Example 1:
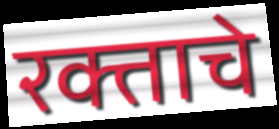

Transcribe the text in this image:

रक्ताचे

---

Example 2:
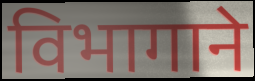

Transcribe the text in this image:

विभागाने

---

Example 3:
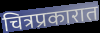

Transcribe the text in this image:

चित्रप्रकारात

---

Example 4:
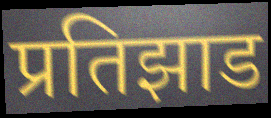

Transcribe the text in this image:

प्रतिझाड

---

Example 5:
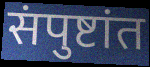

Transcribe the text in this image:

संपुष्टांत